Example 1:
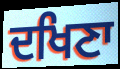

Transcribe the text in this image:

ਦਖਿਣਾ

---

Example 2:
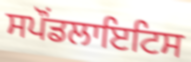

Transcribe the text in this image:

ਸਪੌਂਡਲਾਇਟਿਸ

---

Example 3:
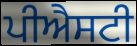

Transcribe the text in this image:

ਪੀਐਸਟੀ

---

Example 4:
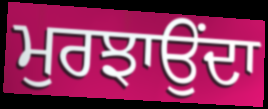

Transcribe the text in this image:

ਮੁਰਝਾਉਂਦਾ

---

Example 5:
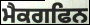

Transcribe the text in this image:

ਮੈਕਗਫਿਨ